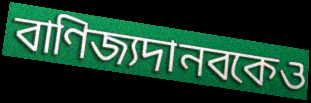
বাণিজ্যদানবকেও